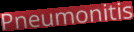
Pneumonitis